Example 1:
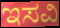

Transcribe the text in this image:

ಇಸವಿ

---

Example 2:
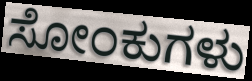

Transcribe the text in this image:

ಸೋಂಕುಗಳು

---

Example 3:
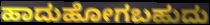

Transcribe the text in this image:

ಹಾದುಹೋಗಬಹುದು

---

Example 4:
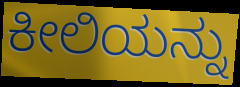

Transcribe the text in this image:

ಕೀಲಿಯನ್ನು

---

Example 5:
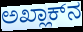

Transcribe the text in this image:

ಅಖ್ಲಾಕ್‍ನ